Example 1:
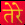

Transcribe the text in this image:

तेरे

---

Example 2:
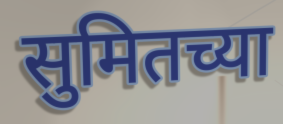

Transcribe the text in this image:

सुमितच्या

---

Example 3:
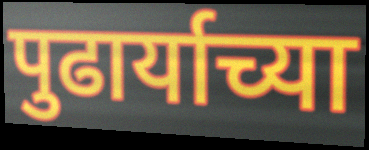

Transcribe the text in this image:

पुढार्याच्या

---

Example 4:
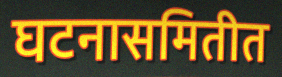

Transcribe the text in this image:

घटनासमितीत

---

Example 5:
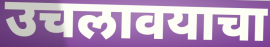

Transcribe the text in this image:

उचलावयाचा